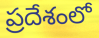
ప్రదేశంలో